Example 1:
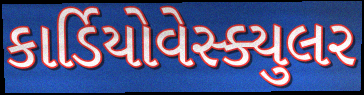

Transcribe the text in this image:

કાર્ડિયોવેસ્ક્યુલર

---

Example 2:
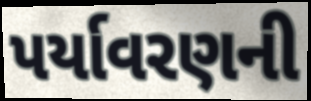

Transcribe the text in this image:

પર્યાવરણની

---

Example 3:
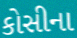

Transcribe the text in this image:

કોસીના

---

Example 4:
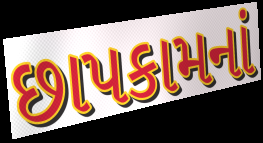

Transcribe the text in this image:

છાપકામનાં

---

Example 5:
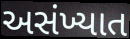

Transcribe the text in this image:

અસંખ્યાત